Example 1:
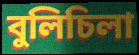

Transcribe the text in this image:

বুলিচিলা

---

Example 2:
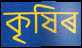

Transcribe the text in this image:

কৃষিৰ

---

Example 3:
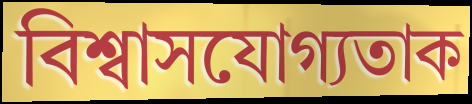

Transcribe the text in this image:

বিশ্বাসযোগ্যতাক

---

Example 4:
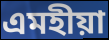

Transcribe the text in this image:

এমহীয়া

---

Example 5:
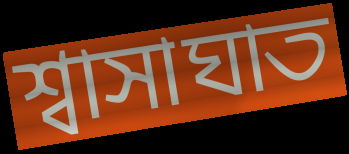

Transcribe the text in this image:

শ্বাসাঘাত